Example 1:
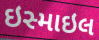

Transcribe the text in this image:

ઇસ્માઇલ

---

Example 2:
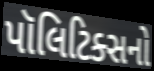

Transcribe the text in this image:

પૉલિટિક્સનો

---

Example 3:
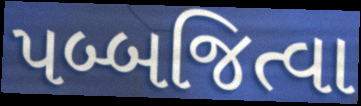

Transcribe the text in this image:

પબ્બજિત્વા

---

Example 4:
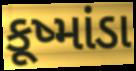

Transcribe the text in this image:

કૂષ્માંડા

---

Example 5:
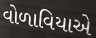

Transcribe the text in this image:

વોળાવિયાએ